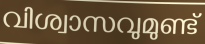
വിശ്വാസവുമുണ്ട്